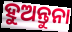
ହୁଅନ୍ତୁନା